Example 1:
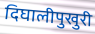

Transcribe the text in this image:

दिघालीपुखुरी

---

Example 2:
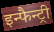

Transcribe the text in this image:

इन्फैन्ट्री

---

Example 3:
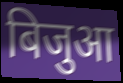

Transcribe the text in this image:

बिजुआ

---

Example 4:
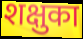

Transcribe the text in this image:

शक्षुका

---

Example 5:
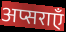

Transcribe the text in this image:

अप्सराएँ